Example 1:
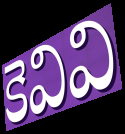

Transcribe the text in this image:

కెవివి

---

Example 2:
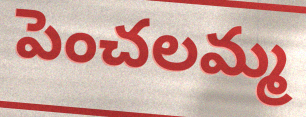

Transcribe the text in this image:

పెంచలమ్మ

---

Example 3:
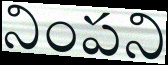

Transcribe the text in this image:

నింపని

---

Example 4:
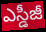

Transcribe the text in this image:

ఎస్డీజీ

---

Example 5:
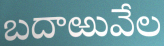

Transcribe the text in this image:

బదాఱువేల